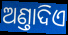
ଅଣ୍ତାଦିଏ